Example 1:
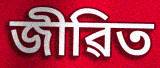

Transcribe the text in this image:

জীৱিত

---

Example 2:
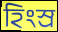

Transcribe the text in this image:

হিংস্ৰ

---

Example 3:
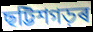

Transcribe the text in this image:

ছট্টিশগড়ৰ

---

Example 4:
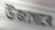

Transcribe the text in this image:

উজাগৰে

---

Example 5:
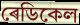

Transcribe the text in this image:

ৰেডিকেল